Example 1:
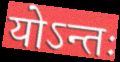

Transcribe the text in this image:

योऽन्तः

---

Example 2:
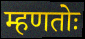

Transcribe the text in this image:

म्हणतोः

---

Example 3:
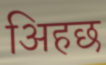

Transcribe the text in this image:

अिहछ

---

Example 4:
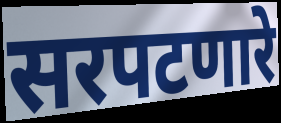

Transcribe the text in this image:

सरपटणारे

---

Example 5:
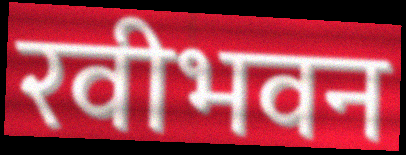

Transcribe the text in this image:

रवीभवन